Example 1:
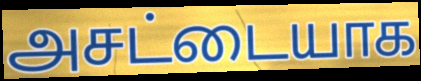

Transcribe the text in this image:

அசட்டையாக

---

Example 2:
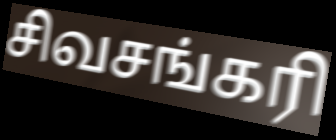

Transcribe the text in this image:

சிவசங்கரி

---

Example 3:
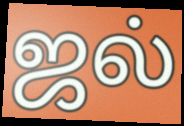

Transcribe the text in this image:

ஜல்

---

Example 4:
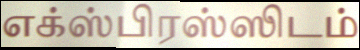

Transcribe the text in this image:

எக்ஸ்பிரஸ்ஸிடம்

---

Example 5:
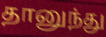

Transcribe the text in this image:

தானுந்து